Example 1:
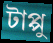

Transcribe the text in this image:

টাপ্পু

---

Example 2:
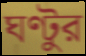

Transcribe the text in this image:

ঘণ্টুর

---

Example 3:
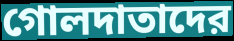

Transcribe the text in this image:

গোলদাতাদের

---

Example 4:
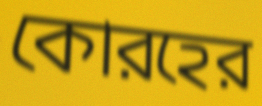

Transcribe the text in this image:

কোরহের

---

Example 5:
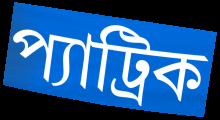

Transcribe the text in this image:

প্যাট্রিক